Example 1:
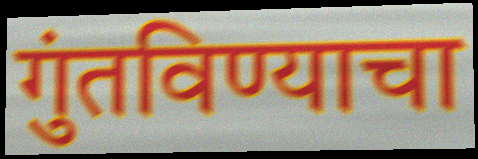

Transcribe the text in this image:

गुंतविण्याचा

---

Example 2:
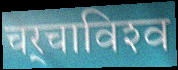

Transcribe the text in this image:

चर्चाविश्व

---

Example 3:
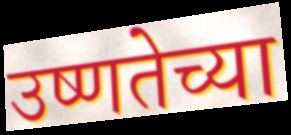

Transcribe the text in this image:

उष्णतेच्या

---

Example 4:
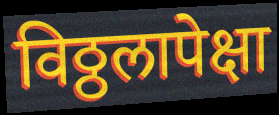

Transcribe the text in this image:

विठ्ठलापेक्षा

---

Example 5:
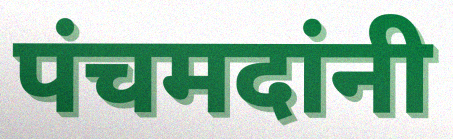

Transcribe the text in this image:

पंचमदांनी